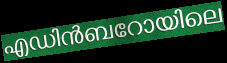
എഡിൻബറോയിലെ